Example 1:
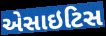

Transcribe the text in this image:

એસાઇટિસ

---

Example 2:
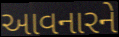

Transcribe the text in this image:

આવનારને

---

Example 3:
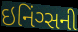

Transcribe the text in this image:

ઇનિંગ્સની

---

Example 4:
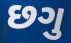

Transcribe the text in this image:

છગુ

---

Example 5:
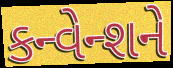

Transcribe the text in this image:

કન્વેન્શને